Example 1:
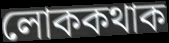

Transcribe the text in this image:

লোককথাক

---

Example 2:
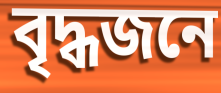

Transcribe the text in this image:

বৃদ্ধজনে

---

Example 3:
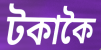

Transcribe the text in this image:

টকাকৈ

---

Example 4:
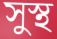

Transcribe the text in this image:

সুস্থ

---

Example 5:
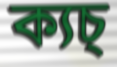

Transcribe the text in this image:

ক্যচ্